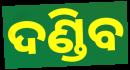
ଦଣ୍ଡିବ